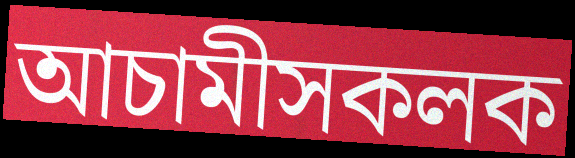
আচামীসকলক